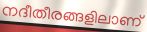
നദീതീരങ്ങളിലാണ്